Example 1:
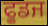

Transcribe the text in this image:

ਫੂਡਜ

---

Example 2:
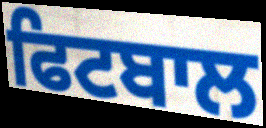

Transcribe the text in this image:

ਫਿਟਬਾਲ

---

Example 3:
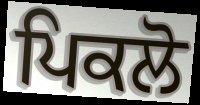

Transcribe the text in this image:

ਪਿਕਲੋ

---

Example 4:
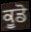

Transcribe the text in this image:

ਕੂਡੋ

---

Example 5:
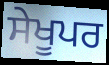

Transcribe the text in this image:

ਸੇਖੂਪਰ